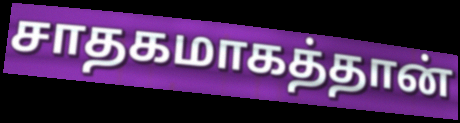
சாதகமாகத்தான்